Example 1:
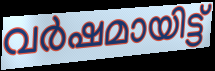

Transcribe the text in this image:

വർഷമായിട്ട്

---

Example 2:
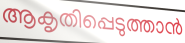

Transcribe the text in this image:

ആകൃതിപ്പെടുത്താൻ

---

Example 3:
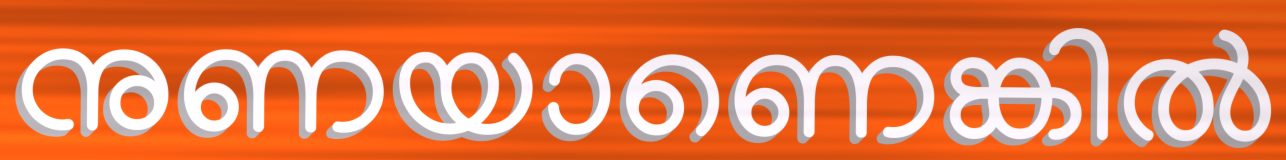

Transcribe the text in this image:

നുണയാണെങ്കിൽ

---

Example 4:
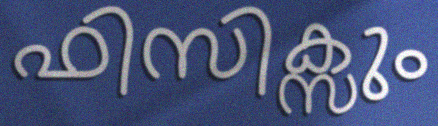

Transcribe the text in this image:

ഫിസിക്സും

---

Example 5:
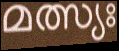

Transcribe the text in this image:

മത്സ്യഃ